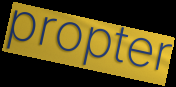
propter